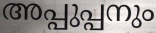
അപ്പുപ്പനും